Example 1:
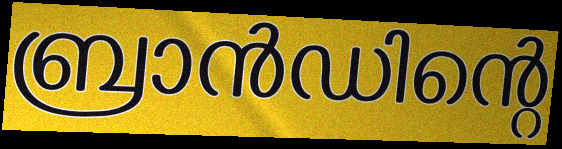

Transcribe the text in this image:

ബ്രാൻഡിന്റെ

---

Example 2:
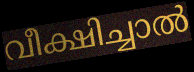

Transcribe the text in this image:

വീക്ഷിച്ചാൽ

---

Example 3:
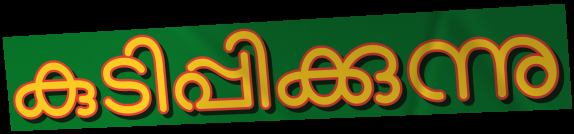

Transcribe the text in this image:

കുടിപ്പിക്കുന്നു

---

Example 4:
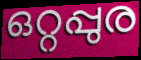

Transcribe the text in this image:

ഒറ്റപ്പുര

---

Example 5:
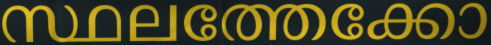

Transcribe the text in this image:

സ്ഥലത്തേക്കോ